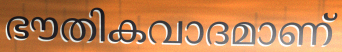
ഭൗതികവാദമാണ്